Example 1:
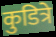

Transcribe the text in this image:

कुडित्रे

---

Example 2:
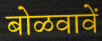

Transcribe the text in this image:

बोळवावें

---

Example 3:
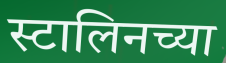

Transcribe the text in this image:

स्टालिनच्या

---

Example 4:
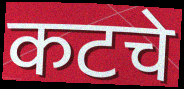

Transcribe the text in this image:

कटचे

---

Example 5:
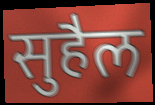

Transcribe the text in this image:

सुहैल